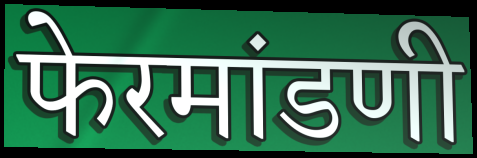
फेरमांडणी